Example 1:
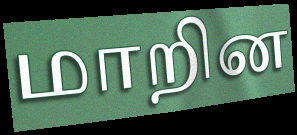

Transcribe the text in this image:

மாறின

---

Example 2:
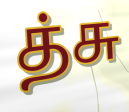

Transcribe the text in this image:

த்சு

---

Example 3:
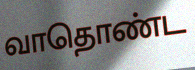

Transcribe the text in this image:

வாதொண்ட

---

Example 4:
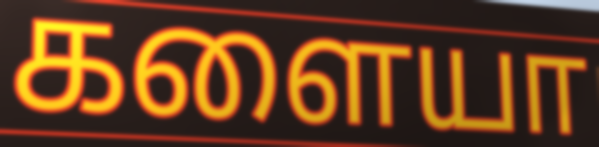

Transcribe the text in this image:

களையா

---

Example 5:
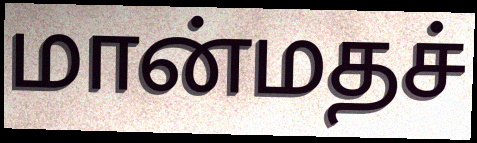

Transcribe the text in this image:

மான்மதச்